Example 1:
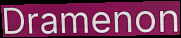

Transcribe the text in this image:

Dramenon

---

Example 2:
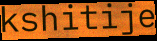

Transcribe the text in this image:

kshitije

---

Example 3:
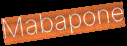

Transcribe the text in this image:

Mabapone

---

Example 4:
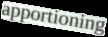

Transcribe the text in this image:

apportioning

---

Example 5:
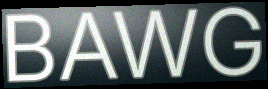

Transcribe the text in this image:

BAWG